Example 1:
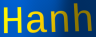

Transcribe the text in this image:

Hanh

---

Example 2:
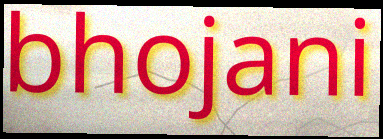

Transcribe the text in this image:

bhojani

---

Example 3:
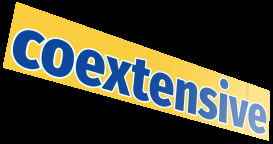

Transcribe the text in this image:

coextensive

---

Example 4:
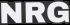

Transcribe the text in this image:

NRG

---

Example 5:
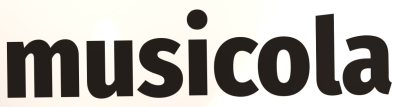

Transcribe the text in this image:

musicola